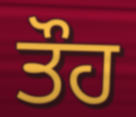
ਤੌਹ